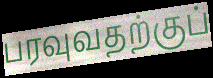
பரவுவதற்குப்